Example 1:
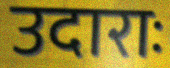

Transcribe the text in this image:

उदाराः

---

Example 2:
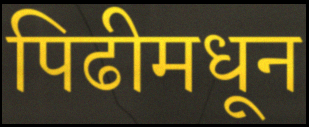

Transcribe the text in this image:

पिढीमधून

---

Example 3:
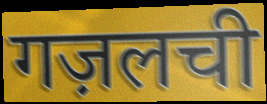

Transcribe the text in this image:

गज़लची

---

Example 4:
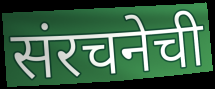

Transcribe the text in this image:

संरचनेची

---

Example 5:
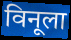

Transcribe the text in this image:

विनूला